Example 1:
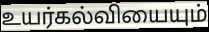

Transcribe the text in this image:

உயர்கல்வியையும்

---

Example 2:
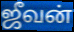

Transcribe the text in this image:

ஜீவன்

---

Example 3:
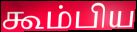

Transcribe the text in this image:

கூம்பிய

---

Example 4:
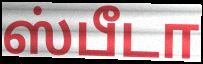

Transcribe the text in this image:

ஸ்பீடா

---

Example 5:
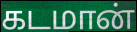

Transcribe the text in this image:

கடமான்